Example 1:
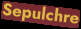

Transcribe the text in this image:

Sepulchre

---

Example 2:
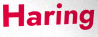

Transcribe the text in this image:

Haring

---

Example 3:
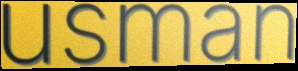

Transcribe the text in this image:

usman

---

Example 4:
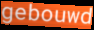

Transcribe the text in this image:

gebouwd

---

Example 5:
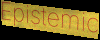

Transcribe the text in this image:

Epistemic